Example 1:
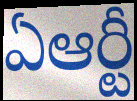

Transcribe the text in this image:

ఏఆర్టీ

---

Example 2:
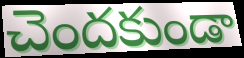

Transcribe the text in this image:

చెందకుండా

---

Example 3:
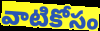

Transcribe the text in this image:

వాటికోసం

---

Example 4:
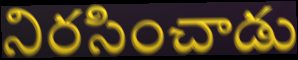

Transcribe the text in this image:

నిరసించాడు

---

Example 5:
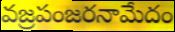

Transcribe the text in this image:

వజ్రపంజరనామేదం